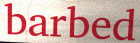
barbed